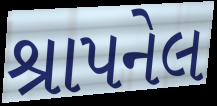
શ્રાપનેલ